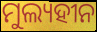
ମୁଲ୍ୟହୀନ